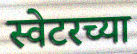
स्वेटरच्या